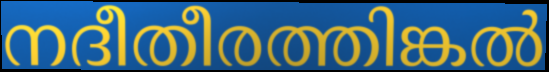
നദീതീരത്തിങ്കൽ